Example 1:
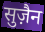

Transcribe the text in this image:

सुज़ैन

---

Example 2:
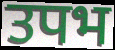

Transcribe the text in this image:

उपभ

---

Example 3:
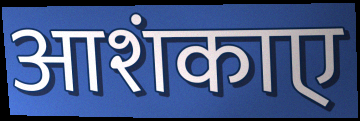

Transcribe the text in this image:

आशंकाए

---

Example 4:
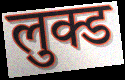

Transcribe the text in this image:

लुक्ड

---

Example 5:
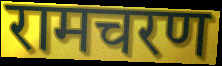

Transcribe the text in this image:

रामचरण